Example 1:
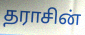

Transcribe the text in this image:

தராசின்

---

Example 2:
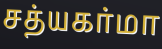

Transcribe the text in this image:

சத்யகர்மா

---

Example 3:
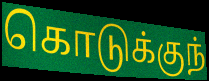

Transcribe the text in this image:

கொடுக்குந்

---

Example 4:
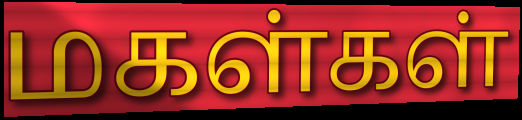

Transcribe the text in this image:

மகள்கள்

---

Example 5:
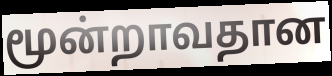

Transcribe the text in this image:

மூன்றாவதான